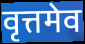
वृत्तमेव